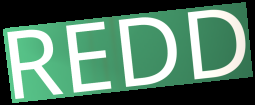
REDD